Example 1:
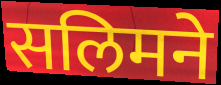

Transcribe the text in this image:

सलिमने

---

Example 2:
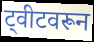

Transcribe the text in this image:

ट्वीटवरून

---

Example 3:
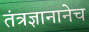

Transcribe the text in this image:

तंत्रज्ञानानेच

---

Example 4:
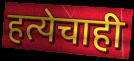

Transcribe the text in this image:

हत्येचाही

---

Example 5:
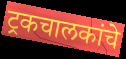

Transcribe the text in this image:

ट्रकचालकांचे